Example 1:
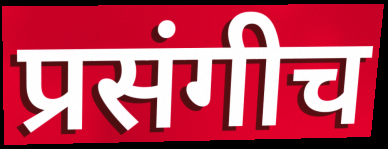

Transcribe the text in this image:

प्रसंगीच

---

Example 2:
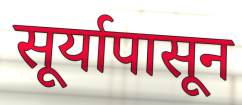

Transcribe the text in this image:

सूर्यापासून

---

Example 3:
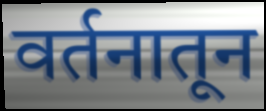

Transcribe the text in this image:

वर्तनातून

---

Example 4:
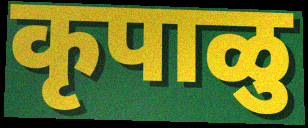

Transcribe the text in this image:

कृपाळु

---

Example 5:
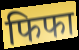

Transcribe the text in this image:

फिफा